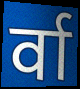
र्वा